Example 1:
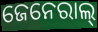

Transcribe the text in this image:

ଜେନେରାଲ୍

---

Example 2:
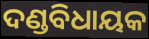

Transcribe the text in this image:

ଦଣ୍ଡବିଧାୟକ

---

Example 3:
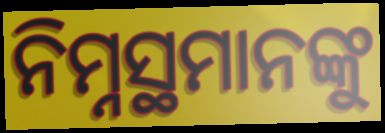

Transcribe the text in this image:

ନିମ୍ନସ୍ଥମାନଙ୍କୁ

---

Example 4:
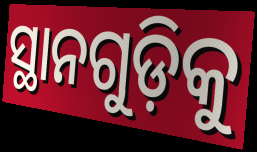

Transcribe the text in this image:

ସ୍ଥାନଗୁଡ଼ିକୁ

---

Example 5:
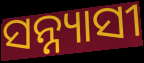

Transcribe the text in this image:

ସନ୍ନ୍ୟାସୀ